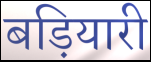
बड़ियारी